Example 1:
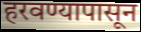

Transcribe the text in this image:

हरवण्यापासून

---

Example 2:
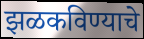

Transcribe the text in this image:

झळकविण्याचे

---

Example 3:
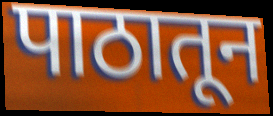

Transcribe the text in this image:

पाठातून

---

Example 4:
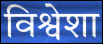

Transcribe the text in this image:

विश्वेशा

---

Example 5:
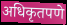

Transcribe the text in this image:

अधिकृतपणे